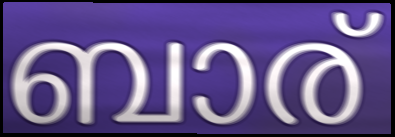
ബാര്